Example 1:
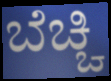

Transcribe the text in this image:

ಬೆಚ್ಚಿ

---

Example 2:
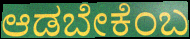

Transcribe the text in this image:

ಆಡಬೇಕೆಂಬ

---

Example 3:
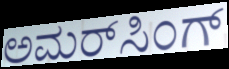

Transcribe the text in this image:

ಅಮರ್‌ಸಿಂಗ್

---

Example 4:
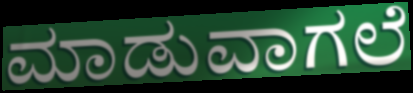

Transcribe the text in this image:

ಮಾಡುವಾಗಲೆ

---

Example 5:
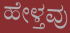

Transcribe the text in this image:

ಹೇಳ್ತವು